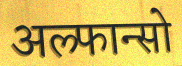
अल्फान्सो